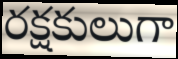
రక్షకులుగా